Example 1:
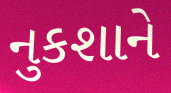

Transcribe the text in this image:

નુકશાને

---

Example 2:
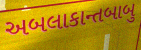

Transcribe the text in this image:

અબલાકાન્તબાબુ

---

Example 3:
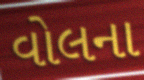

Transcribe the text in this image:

વોલના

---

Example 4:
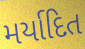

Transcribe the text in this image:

મર્યાદિત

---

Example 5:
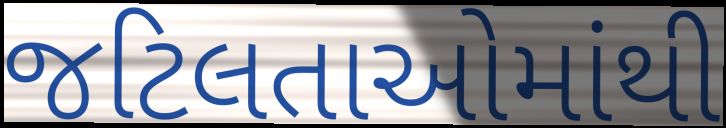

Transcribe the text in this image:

જટિલતાઓમાંથી